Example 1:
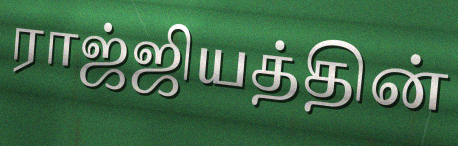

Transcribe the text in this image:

ராஜ்ஜியத்தின்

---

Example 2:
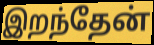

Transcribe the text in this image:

இறந்தேன்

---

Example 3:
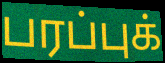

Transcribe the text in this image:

பரப்புக்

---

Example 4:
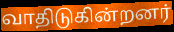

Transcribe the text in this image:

வாதிடுகின்றனர்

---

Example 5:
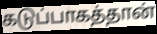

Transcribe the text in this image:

கடுப்பாகத்தான்